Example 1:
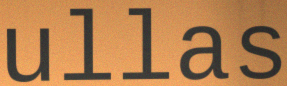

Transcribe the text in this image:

ullas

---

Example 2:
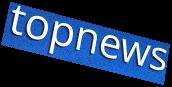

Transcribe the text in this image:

topnews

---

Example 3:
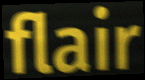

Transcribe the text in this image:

flair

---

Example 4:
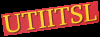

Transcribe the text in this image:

UTIITSL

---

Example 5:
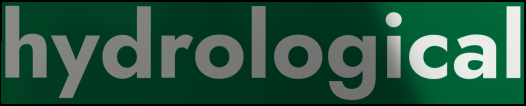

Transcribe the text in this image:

hydrological